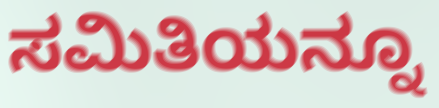
ಸಮಿತಿಯನ್ನೂ